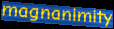
magnanimity